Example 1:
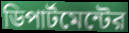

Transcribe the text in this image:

ডিপার্টমেন্টের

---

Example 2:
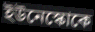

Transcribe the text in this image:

ইউনেস্কোকে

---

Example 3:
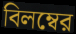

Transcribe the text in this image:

বিলম্বের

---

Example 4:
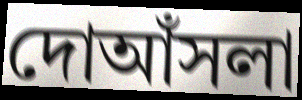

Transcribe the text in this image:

দোআঁসলা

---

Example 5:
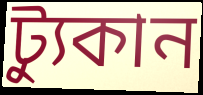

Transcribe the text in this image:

ট্যুকান